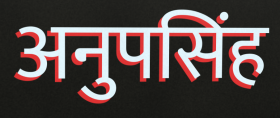
अनुपसिंह